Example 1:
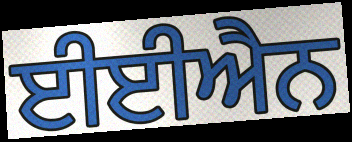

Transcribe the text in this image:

ਈਈਐਨ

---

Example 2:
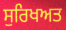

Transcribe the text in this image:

ਸੁਰਿਖਅਤ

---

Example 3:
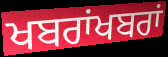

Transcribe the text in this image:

ਖਬਰਾਂਖਬਰਾਂ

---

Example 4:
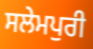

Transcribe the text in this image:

ਸਲੇਮਪੁਰੀ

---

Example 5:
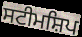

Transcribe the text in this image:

ਸਟੀਮਸ਼ਿਪ